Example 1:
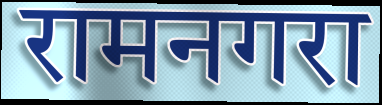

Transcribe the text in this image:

रामनगरा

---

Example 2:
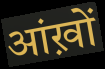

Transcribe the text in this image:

आंख़ों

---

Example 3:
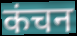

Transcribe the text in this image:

कंचन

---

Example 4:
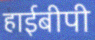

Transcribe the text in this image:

हाईबीपी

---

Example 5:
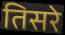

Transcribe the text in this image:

तिसरे